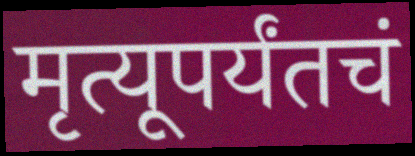
मृत्यूपर्यंतचं